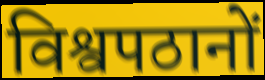
विश्वपठानों